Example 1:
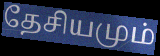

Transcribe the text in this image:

தேசியமும்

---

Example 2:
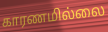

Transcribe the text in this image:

காரணமில்லை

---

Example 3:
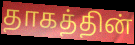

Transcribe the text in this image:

தாகத்தின்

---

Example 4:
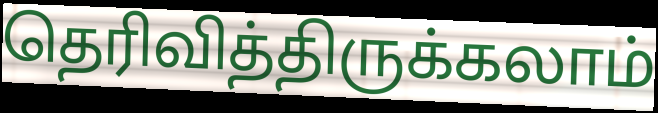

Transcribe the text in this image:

தெரிவித்திருக்கலாம்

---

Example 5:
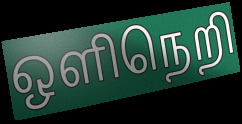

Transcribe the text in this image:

ஒளிநெறி